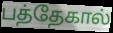
பத்தேகால்